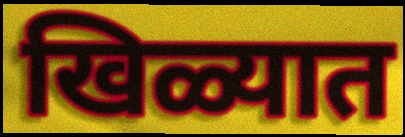
खिळ्यात